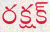
రక్షక్